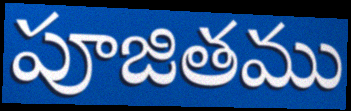
పూజితము